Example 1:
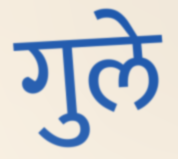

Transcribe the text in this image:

गुले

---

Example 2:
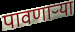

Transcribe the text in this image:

पावणाऱ्या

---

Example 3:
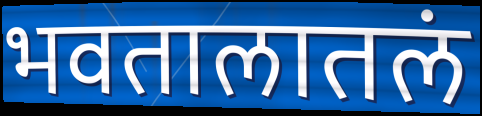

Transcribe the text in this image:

भवतालातलं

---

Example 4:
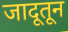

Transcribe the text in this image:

जादूतून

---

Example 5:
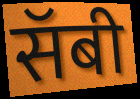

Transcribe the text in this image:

सॅबी